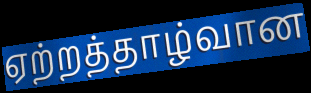
ஏற்றத்தாழ்வான